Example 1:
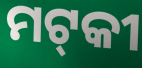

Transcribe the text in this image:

ମଟ୍‌କୀ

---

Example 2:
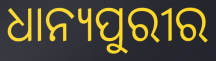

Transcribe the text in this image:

ଧାନ୍ୟପୁରୀର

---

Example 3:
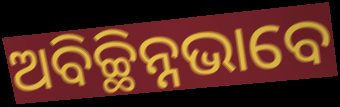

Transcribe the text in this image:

ଅବିଚ୍ଛିନ୍ନଭାବେ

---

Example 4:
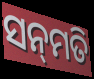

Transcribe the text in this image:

ସନ୍‌ମତି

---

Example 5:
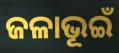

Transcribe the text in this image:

ଜଳାଭୂଇଁ